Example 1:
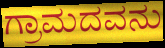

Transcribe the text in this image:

ಗ್ರಾಮದವನು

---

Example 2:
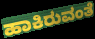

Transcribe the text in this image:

ಹಾಕಿರುವಂತೆ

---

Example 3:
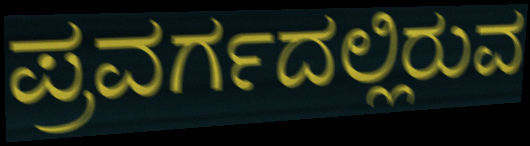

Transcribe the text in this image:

ಪ್ರವರ್ಗದಲ್ಲಿರುವ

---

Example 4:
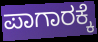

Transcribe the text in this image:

ಪಾಗಾರಕ್ಕೆ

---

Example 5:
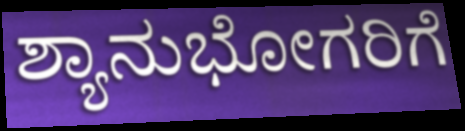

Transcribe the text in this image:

ಶ್ಯಾನುಭೋಗರಿಗೆ